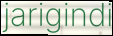
jarigindi